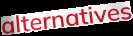
alternatives